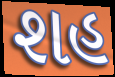
શહ